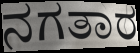
ನಗತಾರ